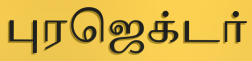
புரஜெக்டர்